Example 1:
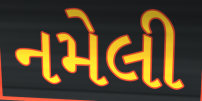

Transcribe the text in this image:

નમેલી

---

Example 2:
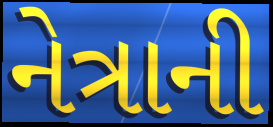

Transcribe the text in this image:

નેત્રાની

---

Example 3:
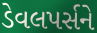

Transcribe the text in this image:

ડેવલપર્સને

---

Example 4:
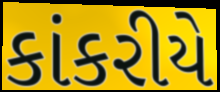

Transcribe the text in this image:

કાંકરીયે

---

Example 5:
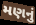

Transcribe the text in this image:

મણનું